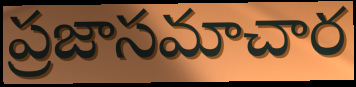
ప్రజాసమాచార